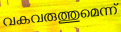
വകവരുത്തുമെന്ന്